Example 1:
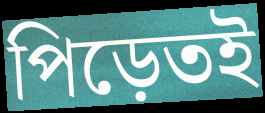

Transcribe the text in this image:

পিড়েতই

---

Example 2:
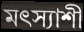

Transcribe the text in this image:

মৎস্যাশী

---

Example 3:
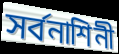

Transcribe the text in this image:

সর্বনাশিনী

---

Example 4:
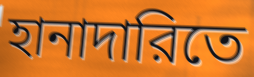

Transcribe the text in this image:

হানাদারিতে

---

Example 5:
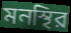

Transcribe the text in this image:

মনস্থির